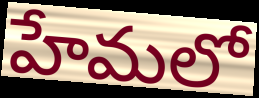
హేమలో